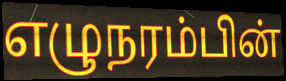
எழுநரம்பின்